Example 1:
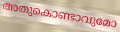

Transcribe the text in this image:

അതുകൊണ്ടാവുമോ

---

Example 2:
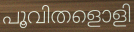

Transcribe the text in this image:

പൂവിതളൊളി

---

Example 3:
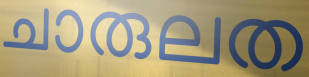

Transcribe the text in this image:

ചാരുലത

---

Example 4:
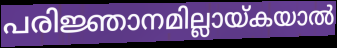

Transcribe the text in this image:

പരിജ്ഞാനമില്ലായ്കയാൽ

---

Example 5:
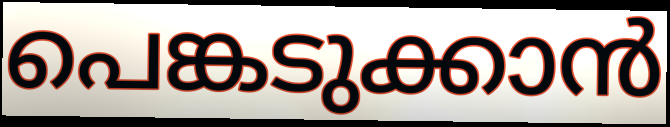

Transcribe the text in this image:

പെങ്കടുക്കാൻ